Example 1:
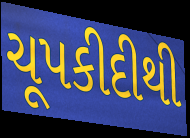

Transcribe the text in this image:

ચૂપકીદીથી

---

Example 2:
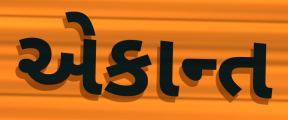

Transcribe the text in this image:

એકાન્ત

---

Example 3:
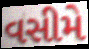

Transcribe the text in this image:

વસીમે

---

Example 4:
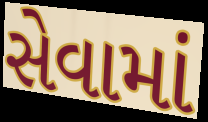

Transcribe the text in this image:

સેવામાં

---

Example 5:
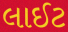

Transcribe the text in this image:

લાઈટ